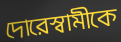
দোরেস্বামীকে